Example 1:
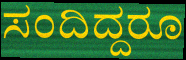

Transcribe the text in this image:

ಸಂದಿದ್ದರೂ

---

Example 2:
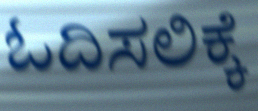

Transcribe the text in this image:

ಓದಿಸಲಿಕ್ಕೆ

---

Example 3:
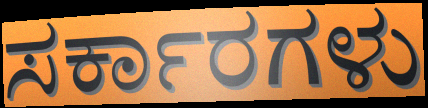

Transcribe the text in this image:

ಸರ್ಕಾರಗಳು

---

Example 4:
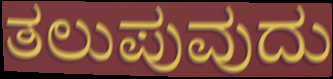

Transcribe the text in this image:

ತಲುಪುವುದು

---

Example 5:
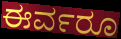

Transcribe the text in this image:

ಈರ್ವರೂ